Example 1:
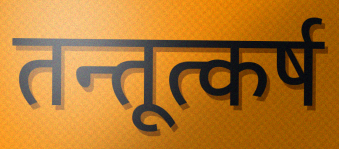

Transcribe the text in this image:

तन्तूत्कर्ष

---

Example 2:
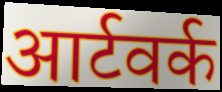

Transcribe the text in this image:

आर्टवर्क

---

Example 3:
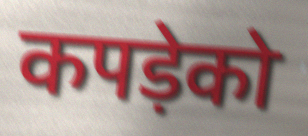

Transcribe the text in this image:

कपड़ेको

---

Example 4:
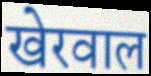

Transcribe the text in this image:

खेरवाल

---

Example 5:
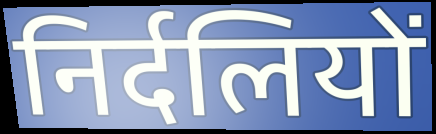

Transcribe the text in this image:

निर्दलियों